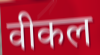
वीकल